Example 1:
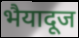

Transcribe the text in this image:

भैयादूज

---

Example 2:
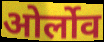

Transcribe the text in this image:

ओर्लोव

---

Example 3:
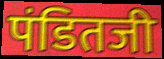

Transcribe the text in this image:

पंडितजी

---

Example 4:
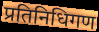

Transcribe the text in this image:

प्रतिनिधिगण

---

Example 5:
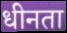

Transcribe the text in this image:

धीनता